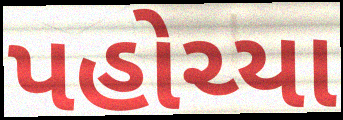
પહોચ્યા